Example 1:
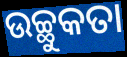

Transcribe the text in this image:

ଉଚ୍ଛୁକତା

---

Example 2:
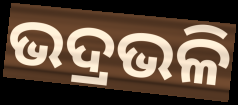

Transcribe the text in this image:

ଭଦ୍ରଭଳି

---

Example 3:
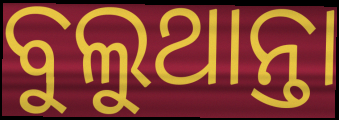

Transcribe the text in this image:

ବୁଲୁଥାନ୍ତା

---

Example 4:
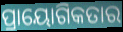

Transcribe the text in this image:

ପ୍ରାୟୋଗିକତାର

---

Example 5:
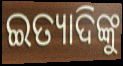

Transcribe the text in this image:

ଇତ୍ଯାଦିଙ୍କୁ